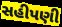
સહીપણી